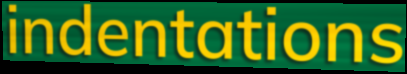
indentations